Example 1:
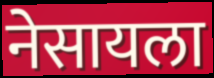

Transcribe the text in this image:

नेसायला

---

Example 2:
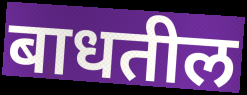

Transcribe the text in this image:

बाधतील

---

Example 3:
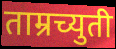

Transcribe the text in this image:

ताम्रच्युती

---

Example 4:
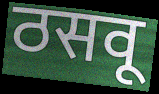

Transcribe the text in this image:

ठसवू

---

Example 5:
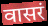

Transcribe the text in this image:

वासरं